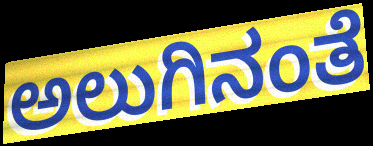
ಅಲುಗಿನಂತೆ